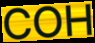
COH